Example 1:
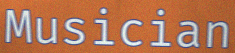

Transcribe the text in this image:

Musician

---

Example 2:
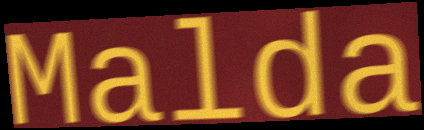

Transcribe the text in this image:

Malda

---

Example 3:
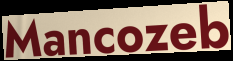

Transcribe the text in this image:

Mancozeb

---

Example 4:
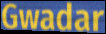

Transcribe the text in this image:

Gwadar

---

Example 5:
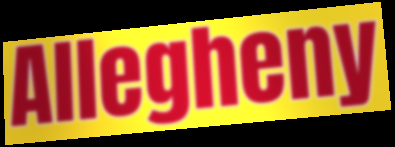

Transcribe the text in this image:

Allegheny